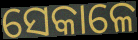
ସେକାଳେ